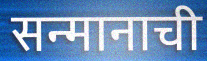
सन्मानाची